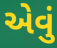
એવું